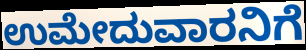
ಉಮೇದುವಾರನಿಗೆ